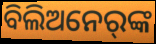
ବିଲିଅନେର୍‌ଙ୍କ